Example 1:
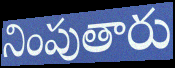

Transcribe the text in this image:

నింపుతారు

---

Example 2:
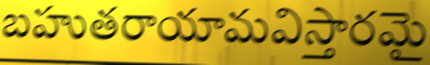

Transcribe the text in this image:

బహుతరాయామవిస్తారమై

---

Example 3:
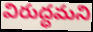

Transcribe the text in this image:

విరుద్ధమని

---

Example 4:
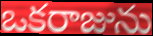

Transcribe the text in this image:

ఒకరాజును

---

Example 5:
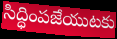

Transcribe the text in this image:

సిద్ధింపజేయుటకు